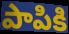
పాపికి